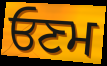
ਓਣਮ